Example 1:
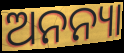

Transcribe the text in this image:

ଅନନ୍ୟା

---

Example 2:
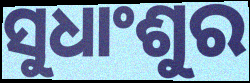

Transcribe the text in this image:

ସୁଧାଂଶୁର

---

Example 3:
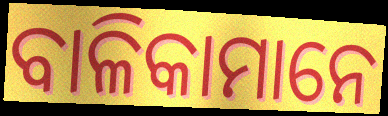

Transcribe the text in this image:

ବାଳିକାମାନେ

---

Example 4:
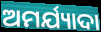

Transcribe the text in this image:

ଅମର୍ଯ୍ୟାଦା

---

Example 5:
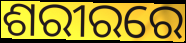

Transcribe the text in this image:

ଶରୀରରେ